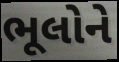
ભૂલોને